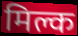
मिल्क